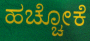
ಹಚ್ಚೋಕೆ